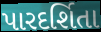
પારદર્શિતા